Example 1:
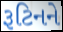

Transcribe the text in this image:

રૂટિનને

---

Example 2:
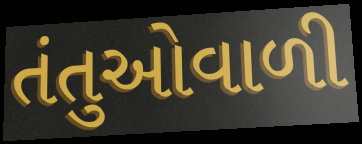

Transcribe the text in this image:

તંતુઓવાળી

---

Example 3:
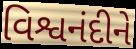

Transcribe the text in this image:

વિશ્વનંદીને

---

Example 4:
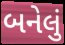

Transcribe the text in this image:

બનેલું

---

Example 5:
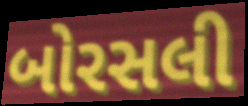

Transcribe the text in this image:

બોરસલી